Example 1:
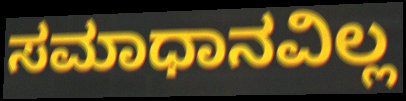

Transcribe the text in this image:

ಸಮಾಧಾನವಿಲ್ಲ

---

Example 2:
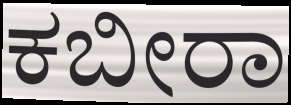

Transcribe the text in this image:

ಕಬೀರಾ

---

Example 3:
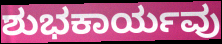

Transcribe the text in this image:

ಶುಭಕಾರ್ಯವು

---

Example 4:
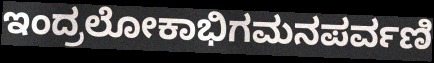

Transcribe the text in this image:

ಇಂದ್ರಲೋಕಾಭಿಗಮನಪರ್ವಣಿ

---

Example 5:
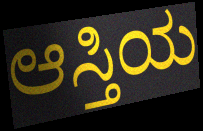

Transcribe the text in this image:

ಆಸ್ತಿಯ